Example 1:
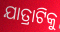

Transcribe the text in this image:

ଯାତ୍ରାଟିକୁ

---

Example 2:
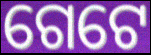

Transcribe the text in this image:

ଗେଟେ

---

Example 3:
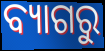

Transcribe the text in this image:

ବ୍ୟାଗରୁ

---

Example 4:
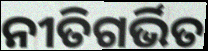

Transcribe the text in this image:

ନୀତିଗର୍ଭିତ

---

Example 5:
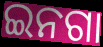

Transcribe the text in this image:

ଇନଗା